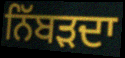
ਨਿੱਬੜਦਾ